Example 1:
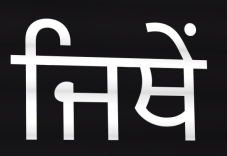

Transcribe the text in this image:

ਜਿਥੇਂ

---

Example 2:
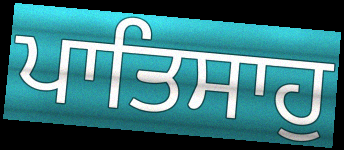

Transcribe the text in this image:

ਪਾਤਿਸਾਹੁ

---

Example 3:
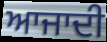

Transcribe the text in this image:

ਆਜਾਦੀ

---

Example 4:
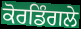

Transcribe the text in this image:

ਕੋਰਡਿੰਗਲੇ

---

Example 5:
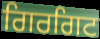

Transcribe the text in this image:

ਗਿਰਗਿਟ